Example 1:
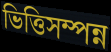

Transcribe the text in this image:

ভিত্তিসম্পন্ন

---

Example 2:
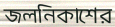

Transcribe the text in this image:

জলনিকাশের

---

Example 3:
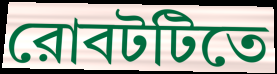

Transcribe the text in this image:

রোবটটিতে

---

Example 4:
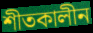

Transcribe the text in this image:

শীতকালীন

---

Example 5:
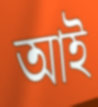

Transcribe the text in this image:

আই